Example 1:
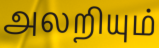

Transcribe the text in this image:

அலறியும்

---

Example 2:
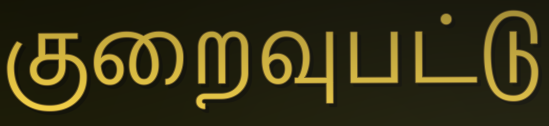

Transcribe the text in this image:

குறைவுபட்டு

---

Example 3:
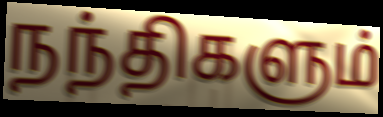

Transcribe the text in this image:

நந்திகளும்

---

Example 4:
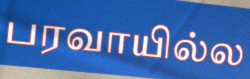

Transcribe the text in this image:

பரவாயில்ல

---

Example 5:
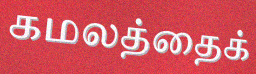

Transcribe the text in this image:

கமலத்தைக்